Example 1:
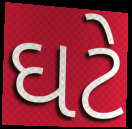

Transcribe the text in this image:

ઘટે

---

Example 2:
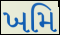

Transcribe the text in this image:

ખમિ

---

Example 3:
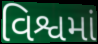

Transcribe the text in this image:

વિશ્વમાં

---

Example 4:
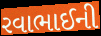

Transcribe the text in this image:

રવાભાઈની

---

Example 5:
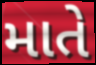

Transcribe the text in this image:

માતે